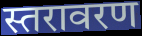
स्तरावरण